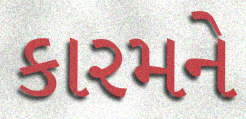
કારમને